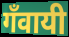
गँवायी